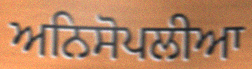
ਅਨਿਸੋਪਲੀਆ